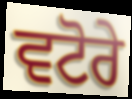
ਵਟੋਰੇ